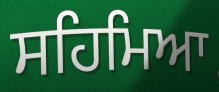
ਸਹਿਮਿਆ